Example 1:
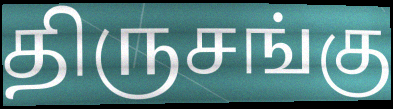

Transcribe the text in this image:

திருசங்கு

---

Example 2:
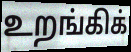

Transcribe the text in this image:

உறங்கிக்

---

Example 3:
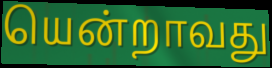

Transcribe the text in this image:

யென்றாவது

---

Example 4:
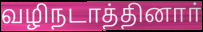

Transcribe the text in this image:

வழிநடாத்தினார்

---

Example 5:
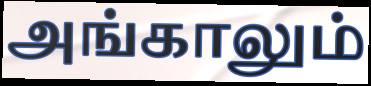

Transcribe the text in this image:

அங்காலும்